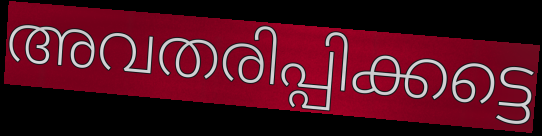
അവതരിപ്പിക്കട്ടെ